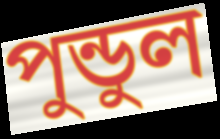
পুন্ডুল